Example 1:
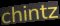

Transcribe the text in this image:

chintz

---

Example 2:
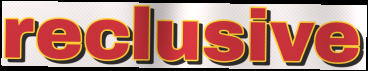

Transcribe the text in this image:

reclusive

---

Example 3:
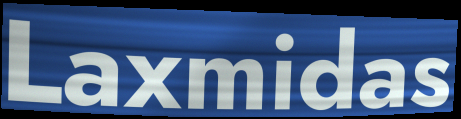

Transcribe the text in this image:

Laxmidas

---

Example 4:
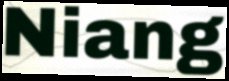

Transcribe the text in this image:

Niang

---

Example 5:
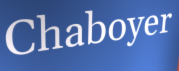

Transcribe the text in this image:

Chaboyer